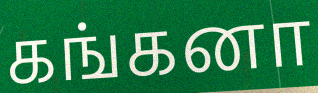
கங்கனா